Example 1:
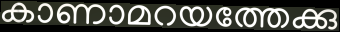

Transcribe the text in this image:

കാണാമറയത്തേക്കു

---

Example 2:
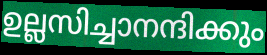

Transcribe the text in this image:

ഉല്ലസിച്ചാനന്ദിക്കും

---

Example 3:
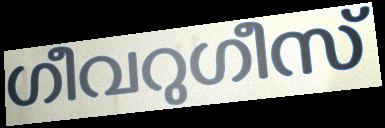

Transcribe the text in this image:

ഗീവറുഗീസ്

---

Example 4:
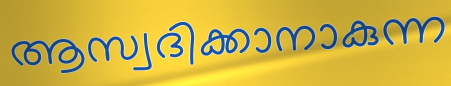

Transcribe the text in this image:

ആസ്വദിക്കാനാകുന്ന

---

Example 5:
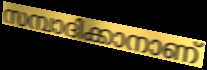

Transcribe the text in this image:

സമ്പാദിക്കാനാണ്